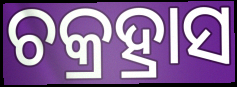
ଚକ୍ରହ୍ରାସ